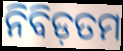
ନିବିଡ଼ତମ